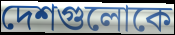
দেশগুলোকে